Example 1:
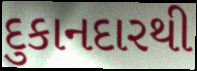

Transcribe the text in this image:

દુકાનદારથી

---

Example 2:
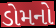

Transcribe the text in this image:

ડોમનો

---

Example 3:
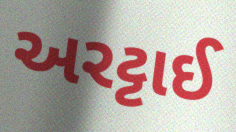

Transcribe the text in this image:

અરટ્ટાઈ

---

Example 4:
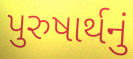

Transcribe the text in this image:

પુરુષાર્થનું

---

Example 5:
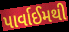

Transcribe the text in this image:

પાર્વાઈમથી